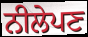
ਨੀਲੇਪਣ